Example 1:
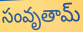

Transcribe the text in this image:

సంవృతామ్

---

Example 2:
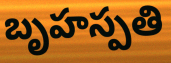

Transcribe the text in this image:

బృహస్పతి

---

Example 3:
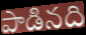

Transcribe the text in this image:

పాడినది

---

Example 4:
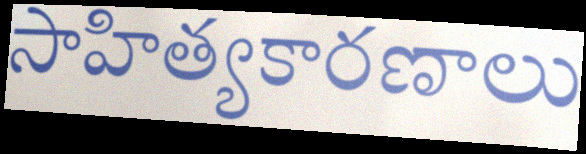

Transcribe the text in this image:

సాహిత్యకారణాలు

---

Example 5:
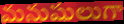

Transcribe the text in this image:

మనుషులుగా